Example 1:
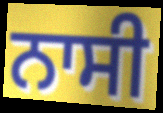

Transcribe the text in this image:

ਨਾਸੀ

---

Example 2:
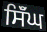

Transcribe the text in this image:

ਸਿੱੰਘ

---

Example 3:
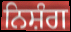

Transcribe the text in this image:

ਨਿਸ਼ੰਗ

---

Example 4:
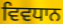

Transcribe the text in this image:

ਵਿਵਧਾਨ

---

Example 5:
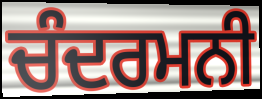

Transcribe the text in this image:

ਚੰਦਰਮਨੀ